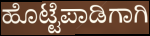
ಹೊಟ್ಟೆಪಾಡಿಗಾಗಿ